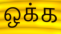
ஒக்க